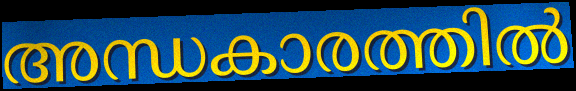
അന്ധകാരത്തിൽ